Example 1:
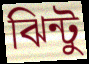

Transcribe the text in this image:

ঝিন্টু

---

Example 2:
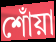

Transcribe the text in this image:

শোঁয়া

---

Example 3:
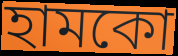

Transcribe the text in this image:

হামকো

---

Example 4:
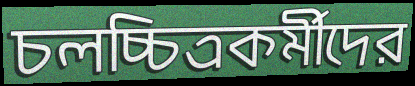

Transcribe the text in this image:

চলচ্চিত্রকর্মীদের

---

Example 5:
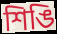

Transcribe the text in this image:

শিঙি